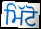
ਮਿੱਟੋ